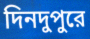
দিনদুপুরে